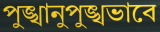
পুঙ্খানুপুঙ্খভাবে